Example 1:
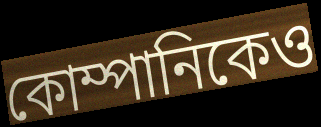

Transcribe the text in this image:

কোম্পানিকেও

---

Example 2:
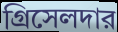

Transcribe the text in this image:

গ্রিসেলদার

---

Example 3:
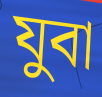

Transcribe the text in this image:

যুবা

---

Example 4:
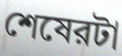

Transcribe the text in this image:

শেষেরটা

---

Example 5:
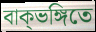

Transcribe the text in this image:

বাক্ভঙ্গিতে